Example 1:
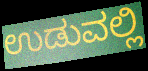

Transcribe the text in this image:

ಉಡುವಲ್ಲಿ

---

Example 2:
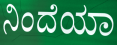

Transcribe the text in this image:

ನಿಂದೆಯಾ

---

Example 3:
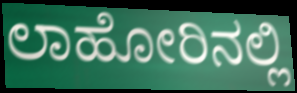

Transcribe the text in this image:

ಲಾಹೋರಿನಲ್ಲಿ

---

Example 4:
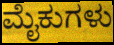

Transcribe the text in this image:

ಮೈಕುಗಳು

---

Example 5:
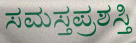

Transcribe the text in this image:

ಸಮಸ್ತಪ್ರಶಸ್ತಿ